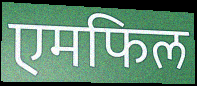
एमफिल